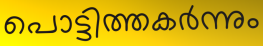
പൊട്ടിത്തകർന്നും